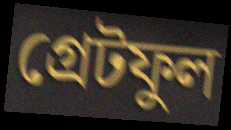
গ্ৰেটফুল